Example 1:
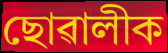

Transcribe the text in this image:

ছোৱালীক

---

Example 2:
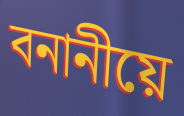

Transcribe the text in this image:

বনানীয়ে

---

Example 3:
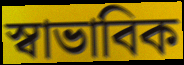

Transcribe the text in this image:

স্বাভাবিক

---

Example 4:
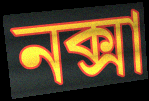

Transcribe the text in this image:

নক্সা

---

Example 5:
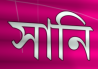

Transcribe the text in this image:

সানি